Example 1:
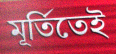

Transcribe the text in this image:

মূর্তিতেই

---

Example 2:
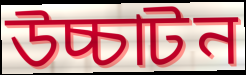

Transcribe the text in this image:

উচ্চাটন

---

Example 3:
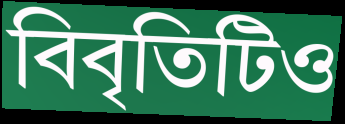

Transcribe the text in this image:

বিবৃতিটিও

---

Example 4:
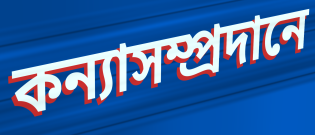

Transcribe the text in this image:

কন্যাসম্প্রদানে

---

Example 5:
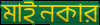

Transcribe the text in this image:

মাইনকার